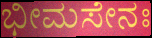
ಭೀಮಸೇನಃ